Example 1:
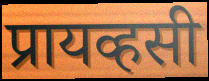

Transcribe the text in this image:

प्रायव्हसी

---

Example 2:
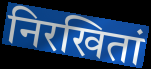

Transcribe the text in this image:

निरखितां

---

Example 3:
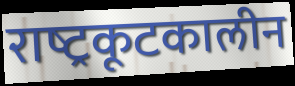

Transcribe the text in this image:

राष्ट्रकूटकालीन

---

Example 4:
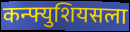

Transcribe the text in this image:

कन्फ्युशियसला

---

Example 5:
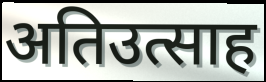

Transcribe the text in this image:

अतिउत्साह